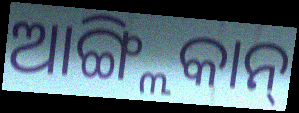
ଆଙ୍ଗ୍ଲିକାନ୍